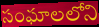
సంఘాలలోని